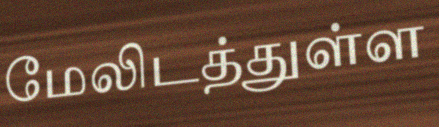
மேலிடத்துள்ள